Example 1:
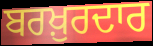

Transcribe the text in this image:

ਬਰਖ਼ੁਰਦਾਰ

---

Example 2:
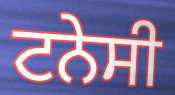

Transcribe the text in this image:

ਟਨੇਸੀ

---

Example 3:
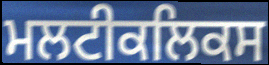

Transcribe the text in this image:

ਮਲਟੀਕਲਿਕਸ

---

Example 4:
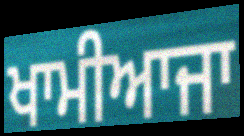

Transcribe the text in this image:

ਖਾਮੀਆਜਾ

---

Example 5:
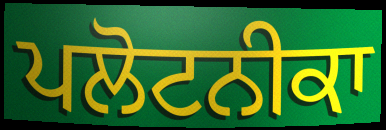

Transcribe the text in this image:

ਪਲੋਟਨੀਕਾ